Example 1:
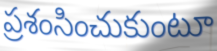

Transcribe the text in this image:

ప్రశంసించుకుంటూ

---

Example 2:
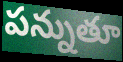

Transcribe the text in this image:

పన్నుతూ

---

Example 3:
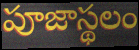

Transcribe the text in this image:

పూజాస్థలం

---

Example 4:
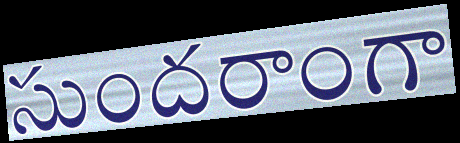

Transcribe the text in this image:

సుందరాంగా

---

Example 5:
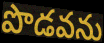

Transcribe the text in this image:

పొడవను